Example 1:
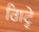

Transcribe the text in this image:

ਗਿਟ੍ਟੇ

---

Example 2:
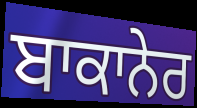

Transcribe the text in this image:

ਬਾਕਾਨੇਰ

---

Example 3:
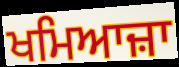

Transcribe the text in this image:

ਖਮਿਆਜ਼ਾ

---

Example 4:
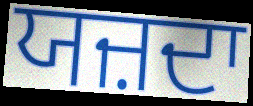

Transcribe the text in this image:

ਯਜ਼ਦਾ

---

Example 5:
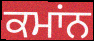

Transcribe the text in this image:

ਕਮਾਂਨ